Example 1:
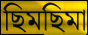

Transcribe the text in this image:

ছিমছিমা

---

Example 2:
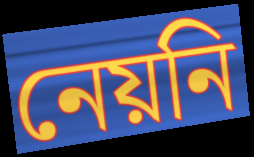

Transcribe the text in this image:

নেয়নি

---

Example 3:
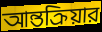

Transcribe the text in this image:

আন্তক্রিয়ার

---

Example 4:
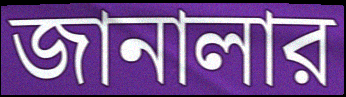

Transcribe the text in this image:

জানালার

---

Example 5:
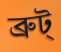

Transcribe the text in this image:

ব্রুট্